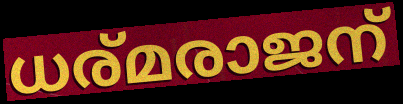
ധര്മരാജന്